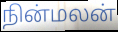
நின்மலன்